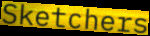
Sketchers